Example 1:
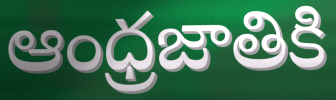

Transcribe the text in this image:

ఆంధ్రజాతికి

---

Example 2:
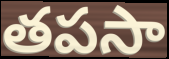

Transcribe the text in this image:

తపసా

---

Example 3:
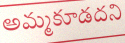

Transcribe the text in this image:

అమ్మకూడదని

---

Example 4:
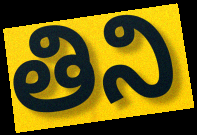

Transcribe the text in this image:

తిని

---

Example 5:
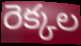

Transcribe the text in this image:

రెక్కల